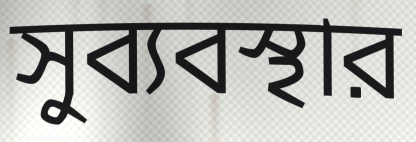
সুব্যবস্থার